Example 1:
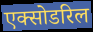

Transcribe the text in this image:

एक्सोडरिल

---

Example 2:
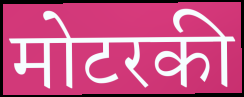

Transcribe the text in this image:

मोटरकी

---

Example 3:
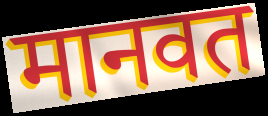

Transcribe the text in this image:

मानवत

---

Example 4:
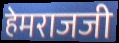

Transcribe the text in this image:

हेमराजजी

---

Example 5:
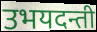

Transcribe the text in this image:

उभयदन्ती